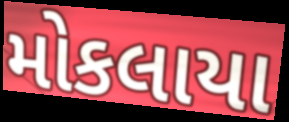
મોકલાયા